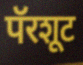
पॅरशूट